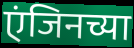
एंजिनच्या